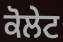
ਕੋਲੇਟ